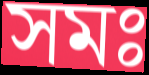
সমঃ